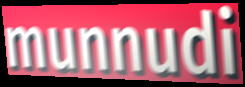
munnudi